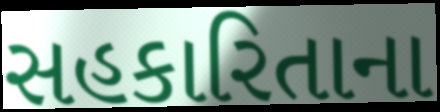
સહકારિતાના